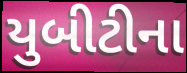
યુબીટીના